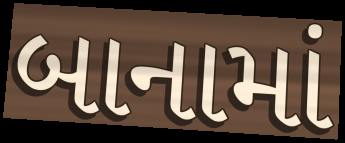
બાનામાં